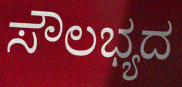
ಸೌಲಭ್ಯದ